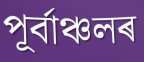
পূৰ্বাঞ্চলৰ